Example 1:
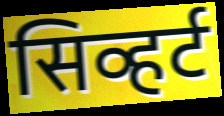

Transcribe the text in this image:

सिव्हर्ट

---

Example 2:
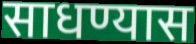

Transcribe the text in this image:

साधण्यास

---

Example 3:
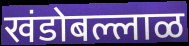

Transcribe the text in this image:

खंडोबल्लाळ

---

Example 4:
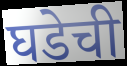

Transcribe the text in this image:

घडेची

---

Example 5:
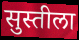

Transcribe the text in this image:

सुस्तीला